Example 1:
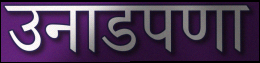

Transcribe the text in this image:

उनाडपणा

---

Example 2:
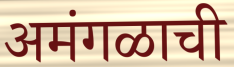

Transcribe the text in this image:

अमंगळाची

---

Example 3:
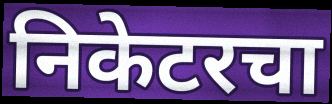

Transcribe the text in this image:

निकेटरचा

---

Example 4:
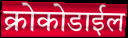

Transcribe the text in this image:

क्रोकोडाईल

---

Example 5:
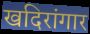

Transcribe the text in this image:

खदिरांगार